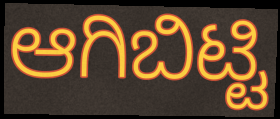
ಆಗಿಬಿಟ್ಟಿ